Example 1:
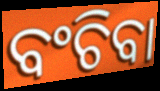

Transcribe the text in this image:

ବଂଚିବା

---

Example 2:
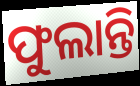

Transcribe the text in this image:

ଫୁଲାନ୍ତି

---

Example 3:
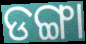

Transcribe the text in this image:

ଡଙ୍ଗା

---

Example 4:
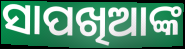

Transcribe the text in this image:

ସାପଖିଆଙ୍କ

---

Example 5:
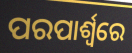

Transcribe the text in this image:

ପରପାର୍ଶ୍ୱରେ